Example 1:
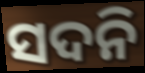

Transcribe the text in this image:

ସଦନି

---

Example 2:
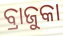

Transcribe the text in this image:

ବ୍ରାଜୁକା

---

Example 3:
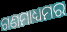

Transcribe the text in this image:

ଗଣମାଧ୍ୟମର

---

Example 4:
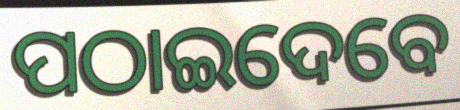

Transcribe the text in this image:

ପଠାଇଦେବେ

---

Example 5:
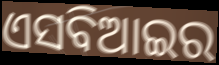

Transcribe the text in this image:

ଏସବିଆଇର